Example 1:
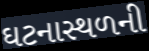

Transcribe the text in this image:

ઘટનાસ્થળની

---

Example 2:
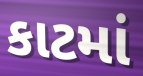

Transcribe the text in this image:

કાટમાં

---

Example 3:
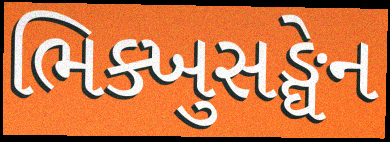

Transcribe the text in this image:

ભિક્ખુસઙ્ઘેન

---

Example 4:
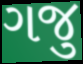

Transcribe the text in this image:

ગજુ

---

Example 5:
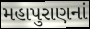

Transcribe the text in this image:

મહાપુરાણનાં